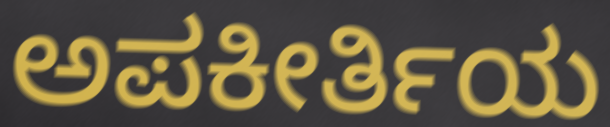
ಅಪಕೀರ್ತಿಯ